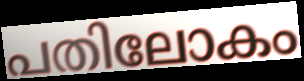
പതിലോകം